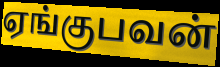
ஏங்குபவன்